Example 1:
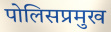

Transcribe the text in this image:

पोलिसप्रमुख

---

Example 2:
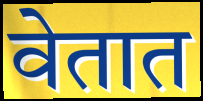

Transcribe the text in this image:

वेतात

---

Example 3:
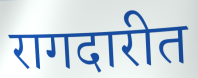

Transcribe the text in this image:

रागदारीत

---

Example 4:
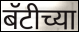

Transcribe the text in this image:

बॅटीच्या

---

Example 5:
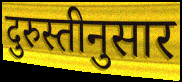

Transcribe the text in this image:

दुरुस्तीनुसार